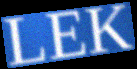
LEK